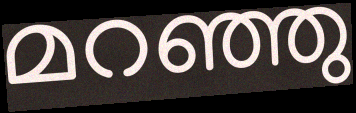
മറഞ്ഞു